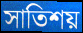
সাতিশয়